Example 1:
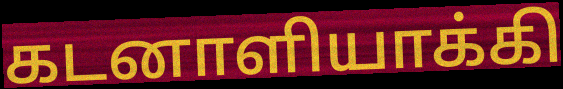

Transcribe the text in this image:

கடனாளியாக்கி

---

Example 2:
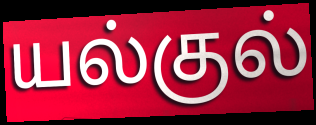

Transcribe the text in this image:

யல்குல்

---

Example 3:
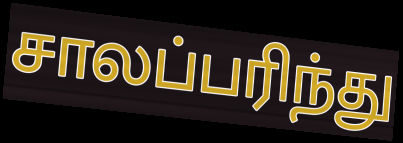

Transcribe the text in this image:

சாலப்பரிந்து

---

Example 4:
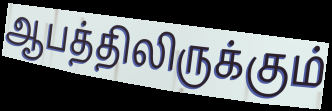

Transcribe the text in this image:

ஆபத்திலிருக்கும்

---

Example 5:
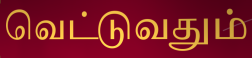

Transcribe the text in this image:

வெட்டுவதும்